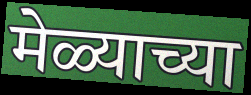
मेळ्याच्या